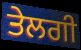
ਤੇਲਗੀ